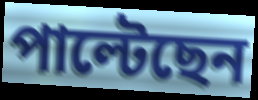
পাল্টেছেন